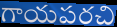
గాయపరచి